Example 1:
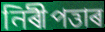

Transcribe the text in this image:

নিৰীপত্তাৰ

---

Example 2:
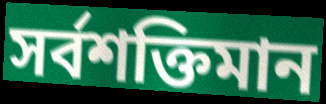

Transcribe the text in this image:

সৰ্বশক্তিমান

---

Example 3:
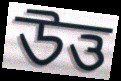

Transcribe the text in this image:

উত্ত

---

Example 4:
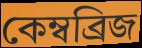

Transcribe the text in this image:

কেম্বব্ৰিজ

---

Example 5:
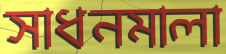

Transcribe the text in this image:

সাধনমালা